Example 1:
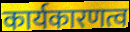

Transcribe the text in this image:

कार्यकारणत्व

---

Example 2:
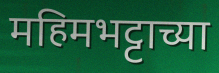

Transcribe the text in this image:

महिमभट्टाच्या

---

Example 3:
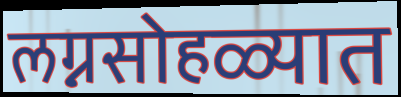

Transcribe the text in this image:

लग्नसोहळ्यात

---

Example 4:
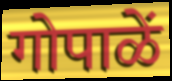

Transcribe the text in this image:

गोपाळें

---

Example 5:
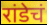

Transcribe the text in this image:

रांडेचं